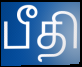
பீதி